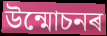
উন্মোচনৰ